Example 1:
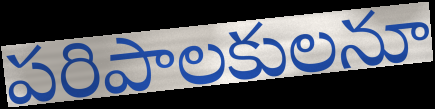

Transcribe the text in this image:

పరిపాలకులనూ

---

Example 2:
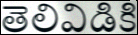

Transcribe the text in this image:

తెలివిడికి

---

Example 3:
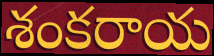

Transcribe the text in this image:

శంకరాయ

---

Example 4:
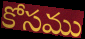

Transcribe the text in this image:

కోసము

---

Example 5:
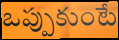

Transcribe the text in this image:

ఒప్పుకుంటే